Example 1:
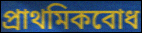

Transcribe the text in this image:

প্রাথমিকবোধ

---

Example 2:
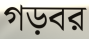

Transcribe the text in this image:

গড়বর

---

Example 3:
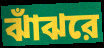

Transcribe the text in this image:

ঝাঁঝরে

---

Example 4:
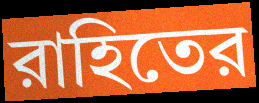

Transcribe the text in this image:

রাহিতের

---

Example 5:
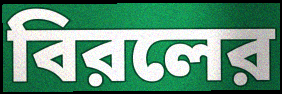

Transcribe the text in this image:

বিরলের